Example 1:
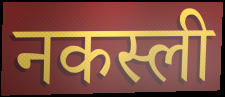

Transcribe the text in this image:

नकस्ली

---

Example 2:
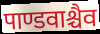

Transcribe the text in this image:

पाण्डवाश्चैव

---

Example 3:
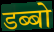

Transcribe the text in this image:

डब्बो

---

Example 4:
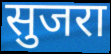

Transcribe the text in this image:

सुजरा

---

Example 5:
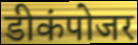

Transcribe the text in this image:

डीकंपोजर